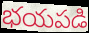
భయపడి